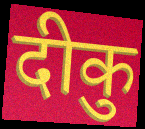
दीकु